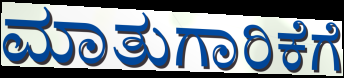
ಮಾತುಗಾರಿಕೆಗೆ